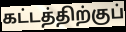
கட்டத்திற்குப்